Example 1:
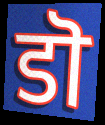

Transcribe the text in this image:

डॊ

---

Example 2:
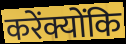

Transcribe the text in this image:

करेंक्योंकि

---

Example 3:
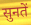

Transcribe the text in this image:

सुनतें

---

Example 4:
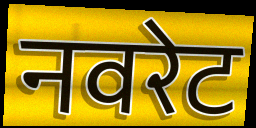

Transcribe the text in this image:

नवरेट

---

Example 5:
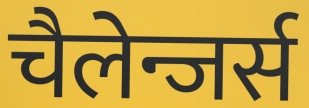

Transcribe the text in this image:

चैलेन्जर्स